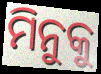
ମିନୁକୁ